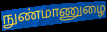
நுண்மாணுழை